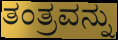
ತಂತ್ರವನ್ನು